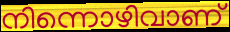
നിന്നൊഴിവാണ്